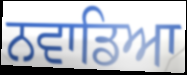
ਨਵਾਡਿਆ